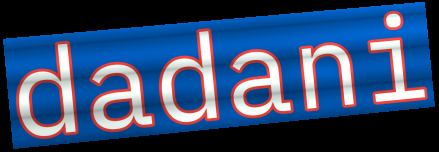
dadani